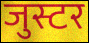
जुस्टर